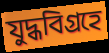
যুদ্ধবিগ্রহে